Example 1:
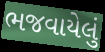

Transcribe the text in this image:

ભજવાયેલું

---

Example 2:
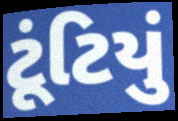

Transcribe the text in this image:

ટૂંટિયું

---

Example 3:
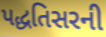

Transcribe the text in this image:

પદ્ધતિસરની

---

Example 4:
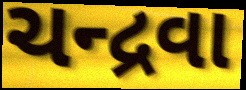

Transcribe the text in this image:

ચન્દ્રવા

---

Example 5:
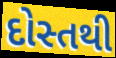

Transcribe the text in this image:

દોસ્તથી